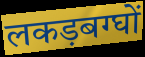
लकड़बग्घों